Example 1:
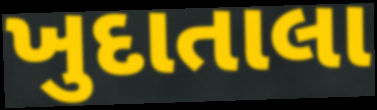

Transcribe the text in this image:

ખુદાતાલા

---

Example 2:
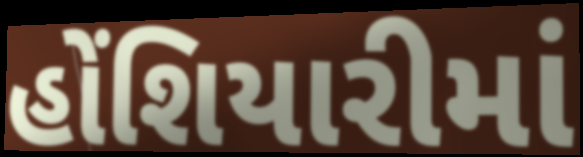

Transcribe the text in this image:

હોંશિયારીમાં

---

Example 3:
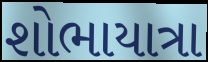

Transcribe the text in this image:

શોભાયાત્રા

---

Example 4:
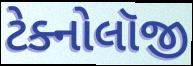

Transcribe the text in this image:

ટેક્નોલૉજી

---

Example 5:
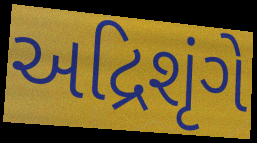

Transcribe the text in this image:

અદ્રિશૃંગે